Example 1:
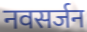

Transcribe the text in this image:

नवसर्जन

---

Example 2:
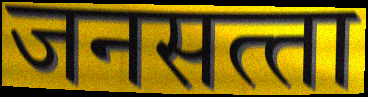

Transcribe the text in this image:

जनसत्‍ता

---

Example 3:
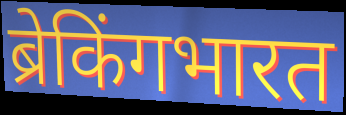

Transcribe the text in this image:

ब्रेकिंगभारत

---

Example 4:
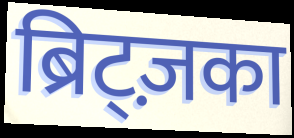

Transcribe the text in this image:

ब्रिट्ज़का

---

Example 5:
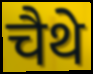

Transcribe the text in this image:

चैथे